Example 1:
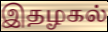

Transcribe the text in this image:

இதழகல்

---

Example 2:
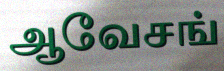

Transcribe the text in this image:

ஆவேசங்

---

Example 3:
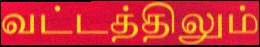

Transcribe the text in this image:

வட்டத்திலும்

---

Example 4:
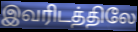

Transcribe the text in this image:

இவரிடத்திலே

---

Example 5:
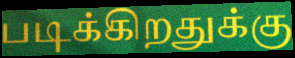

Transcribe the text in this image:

படிக்கிறதுக்கு